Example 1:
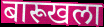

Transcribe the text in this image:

बारूखला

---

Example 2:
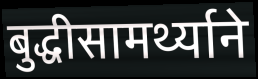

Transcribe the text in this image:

बुद्धीसामर्थ्याने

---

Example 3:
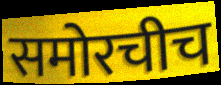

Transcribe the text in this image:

समोरचीच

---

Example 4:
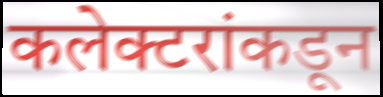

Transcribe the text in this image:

कलेक्टरांकडून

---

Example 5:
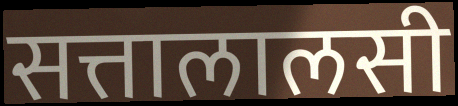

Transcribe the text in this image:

सत्तालालसी